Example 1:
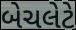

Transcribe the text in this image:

બેચલેટે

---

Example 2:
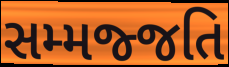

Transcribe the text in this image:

સમ્મજ્જતિ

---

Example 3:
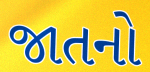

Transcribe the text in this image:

જાતનો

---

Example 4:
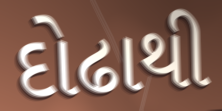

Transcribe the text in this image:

દોઢાથી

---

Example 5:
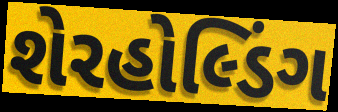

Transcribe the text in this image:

શેરહોલ્ડિંગ